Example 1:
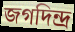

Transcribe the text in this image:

জগদিন্দ্র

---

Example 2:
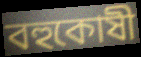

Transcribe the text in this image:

বহুকোষী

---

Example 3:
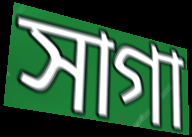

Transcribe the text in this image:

সাগা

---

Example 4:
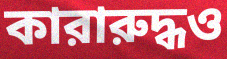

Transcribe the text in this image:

কারারুদ্ধও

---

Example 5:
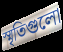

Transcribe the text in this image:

স্মৃতিগুলো